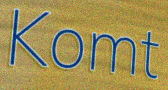
Komt